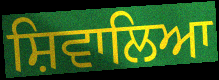
ਸ਼ਿਵਾਲਿਆ